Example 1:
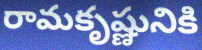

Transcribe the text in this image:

రామకృష్ణునికి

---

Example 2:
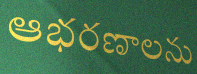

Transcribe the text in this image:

ఆభరణాలను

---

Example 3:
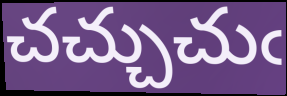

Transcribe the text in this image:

చచ్చుచుఁ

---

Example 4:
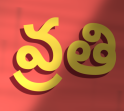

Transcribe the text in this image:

వ్రతి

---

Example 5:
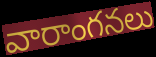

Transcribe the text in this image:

వారాంగనలు